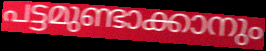
പട്ടമുണ്ടാക്കാനും